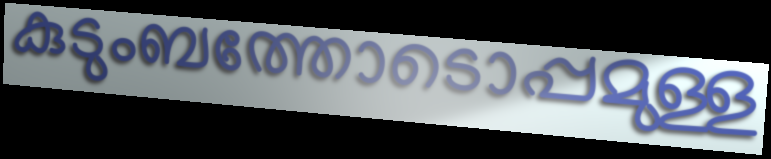
കുടുംബത്തോടൊപ്പമുള്ള